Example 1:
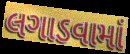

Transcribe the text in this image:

લગાડવામાં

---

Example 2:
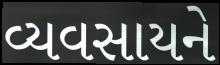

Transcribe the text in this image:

વ્યવસાયને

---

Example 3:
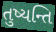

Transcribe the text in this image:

તુષ્યન્તિ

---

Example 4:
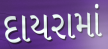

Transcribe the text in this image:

દાયરામાં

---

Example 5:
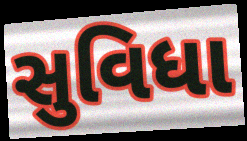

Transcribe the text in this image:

સુવિધા